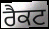
ਰੈਕਟ